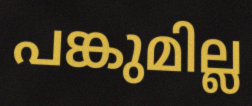
പങ്കുമില്ല